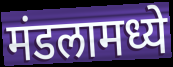
मंडलामध्ये